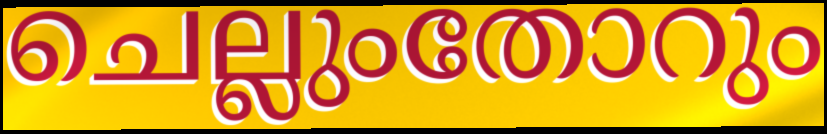
ചെല്ലുംതോറും